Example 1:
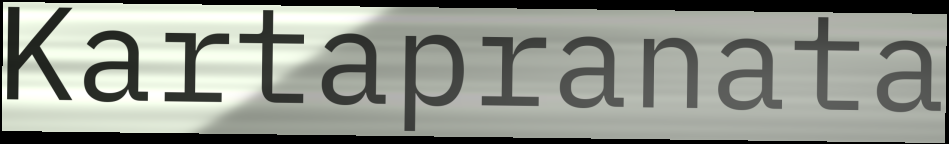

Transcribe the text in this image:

Kartapranata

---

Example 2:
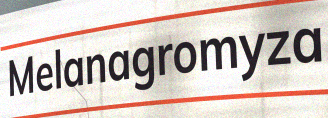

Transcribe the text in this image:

Melanagromyza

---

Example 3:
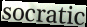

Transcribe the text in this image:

socratic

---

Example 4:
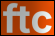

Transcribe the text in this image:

ftc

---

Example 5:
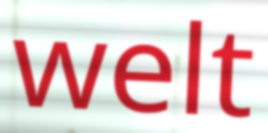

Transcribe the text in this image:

welt